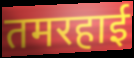
तमरहाई